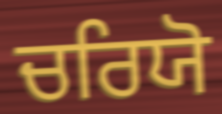
ਚਰਿਯੋ